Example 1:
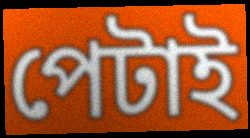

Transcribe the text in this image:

পেটাই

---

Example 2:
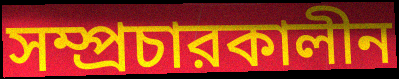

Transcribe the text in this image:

সম্প্রচারকালীন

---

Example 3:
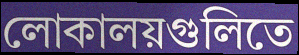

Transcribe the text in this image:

লোকালয়গুলিতে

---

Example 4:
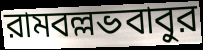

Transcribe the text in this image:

রামবল্লভবাবুর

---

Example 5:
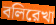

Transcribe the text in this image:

বলিরেখা